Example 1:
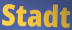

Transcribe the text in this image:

Stadt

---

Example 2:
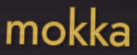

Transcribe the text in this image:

mokka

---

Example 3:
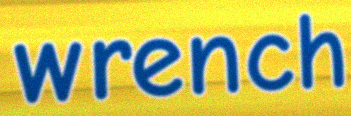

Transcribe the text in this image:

wrench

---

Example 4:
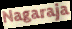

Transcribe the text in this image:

Nagaraja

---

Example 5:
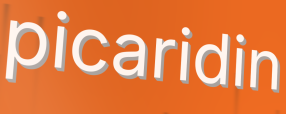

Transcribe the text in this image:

picaridin